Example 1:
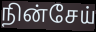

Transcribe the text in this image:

நின்சேய்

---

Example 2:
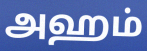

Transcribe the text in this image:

அஹம்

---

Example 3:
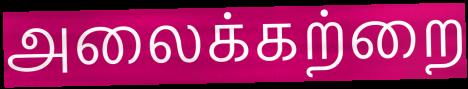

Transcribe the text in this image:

அலைக்கற்றை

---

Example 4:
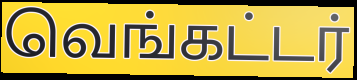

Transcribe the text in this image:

வெங்கட்டர்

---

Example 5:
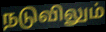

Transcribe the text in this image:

நடுவிலும்